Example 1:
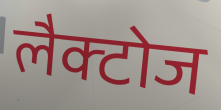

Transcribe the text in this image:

लैक्‍टोज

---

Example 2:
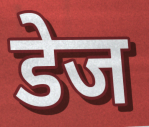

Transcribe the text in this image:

डेज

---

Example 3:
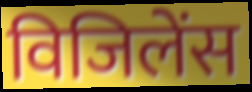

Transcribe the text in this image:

विजिलेंस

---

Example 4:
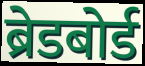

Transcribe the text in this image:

ब्रेडबोर्ड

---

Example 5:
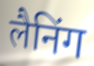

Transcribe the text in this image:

लैनिंग